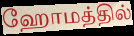
ஹோமத்தில்